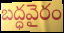
బద్ధవైరం